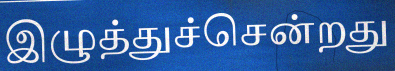
இழுத்துச்சென்றது